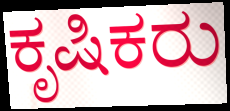
ಕೃಷಿಕರು